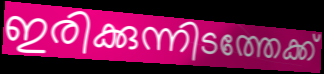
ഇരിക്കുന്നിടത്തേക്ക്